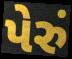
પેરું